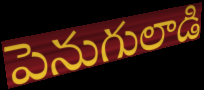
పెనుగులాడి